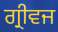
ਗ੍ਰੀਵਜ